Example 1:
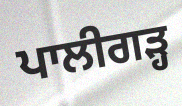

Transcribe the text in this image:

ਪਾਲੀਗੜ੍ਹ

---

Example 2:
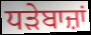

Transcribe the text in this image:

ਧੜੇਬਾਜ਼ਾਂ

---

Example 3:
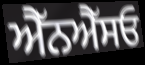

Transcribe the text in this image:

ਐੱਨਐੱਸਓ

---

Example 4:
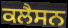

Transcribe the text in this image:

ਕਲੈਸਨ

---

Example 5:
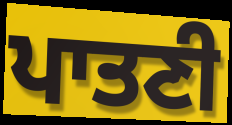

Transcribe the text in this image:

ਪਾਤਣੀ